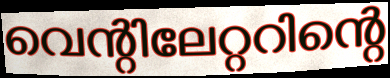
വെന്റിലേറ്ററിന്റെ